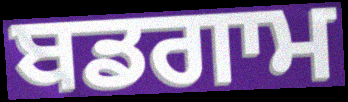
ਬਡਗਾਮ